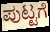
ಪುಟ್ಟಗೆ